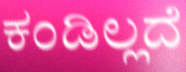
ಕಂಡಿಲ್ಲದೆ